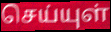
செய்யுள்